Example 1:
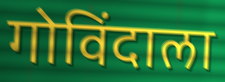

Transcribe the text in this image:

गोविंदाला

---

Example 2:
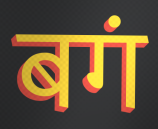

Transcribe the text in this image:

बगं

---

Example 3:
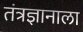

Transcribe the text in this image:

तंत्रज्ञानाला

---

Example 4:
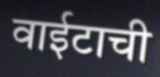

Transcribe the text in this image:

वाईटाची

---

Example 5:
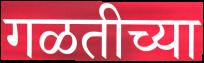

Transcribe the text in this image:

गळतीच्या